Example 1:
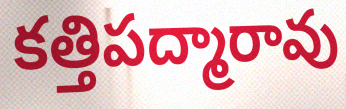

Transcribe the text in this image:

కత్తిపద్మారావు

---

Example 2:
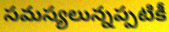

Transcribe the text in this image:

సమస్యలున్నప్పటికీ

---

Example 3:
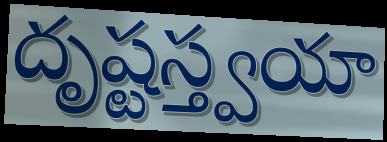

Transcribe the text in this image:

దృష్టస్త్వయా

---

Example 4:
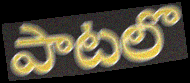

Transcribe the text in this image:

పాటలొ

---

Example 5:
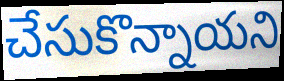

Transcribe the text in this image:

చేసుకొన్నాయని